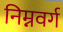
निम्नवर्ग